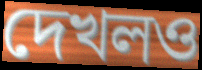
দেখলও